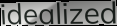
idealized